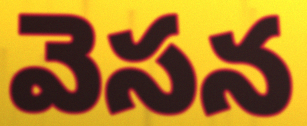
వెసన